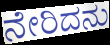
ನೇರಿದನು